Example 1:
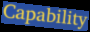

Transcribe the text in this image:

Capability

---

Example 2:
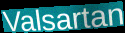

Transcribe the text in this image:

Valsartan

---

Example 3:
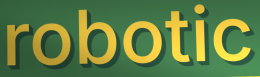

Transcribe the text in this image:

robotic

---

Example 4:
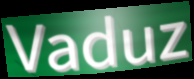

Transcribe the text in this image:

Vaduz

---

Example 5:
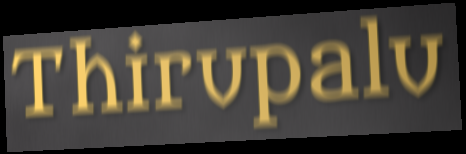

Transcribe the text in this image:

Thirupalu